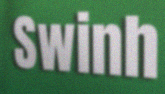
Swinh